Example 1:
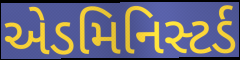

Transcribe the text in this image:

એડમિનિસ્ટર્ડ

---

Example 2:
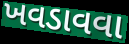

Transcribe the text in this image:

ખવડાવવા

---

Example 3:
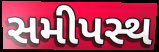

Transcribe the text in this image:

સમીપસ્થ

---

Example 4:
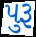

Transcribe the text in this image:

પુરૂ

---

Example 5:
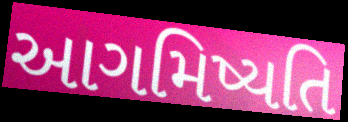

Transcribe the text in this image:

આગમિષ્યતિ